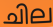
ചില